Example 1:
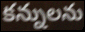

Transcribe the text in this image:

కన్నులను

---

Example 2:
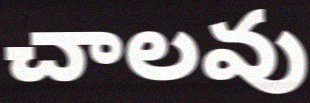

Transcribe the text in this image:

చాలవు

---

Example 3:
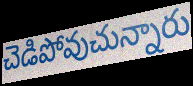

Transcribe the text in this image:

చెడిపోవుచున్నారు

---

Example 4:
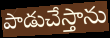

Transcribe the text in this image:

పాడుచేస్తాను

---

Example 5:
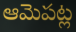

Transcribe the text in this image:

ఆమెపట్ల